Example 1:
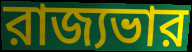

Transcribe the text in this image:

রাজ্যভার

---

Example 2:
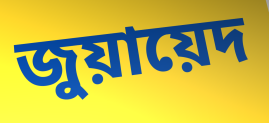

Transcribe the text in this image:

জুয়ায়েদ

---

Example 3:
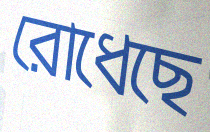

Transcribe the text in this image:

রোধেছে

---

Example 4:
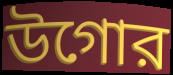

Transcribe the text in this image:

উগোর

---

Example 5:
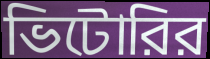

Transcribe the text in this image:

ভিটোরির